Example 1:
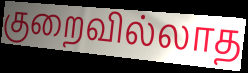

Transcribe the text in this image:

குறைவில்லாத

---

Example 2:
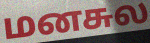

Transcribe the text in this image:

மனசுல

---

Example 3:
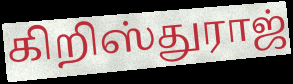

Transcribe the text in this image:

கிறிஸ்துராஜ்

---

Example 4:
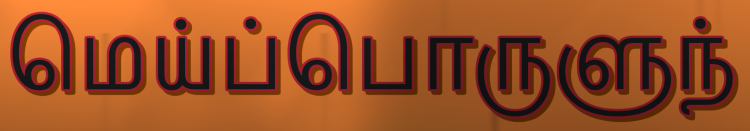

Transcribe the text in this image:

மெய்ப்பொருளுந்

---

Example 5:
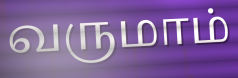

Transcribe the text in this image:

வருமாம்